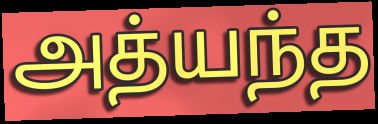
அத்யந்த